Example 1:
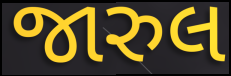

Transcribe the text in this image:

જારુલ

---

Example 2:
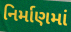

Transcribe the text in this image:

નિર્માણમાં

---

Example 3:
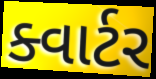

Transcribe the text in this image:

ક્વાર્ટર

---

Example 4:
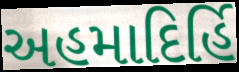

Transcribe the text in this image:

અહમાદિર્હિ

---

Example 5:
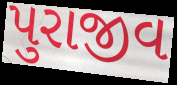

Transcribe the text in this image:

પુરાજીવ